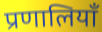
प्रणालियाँ